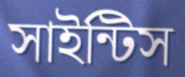
সাইন্টিস